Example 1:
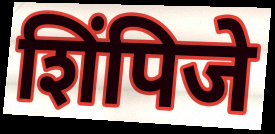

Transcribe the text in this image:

शिंपिजे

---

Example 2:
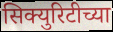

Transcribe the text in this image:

सिक्युरिटीच्या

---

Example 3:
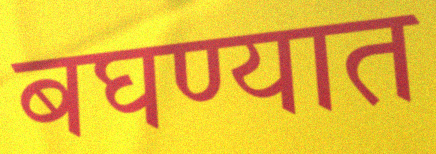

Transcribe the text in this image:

बघण्यात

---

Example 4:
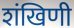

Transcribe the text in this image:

शंखिणी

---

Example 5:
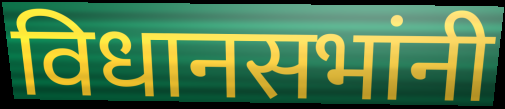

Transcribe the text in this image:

विधानसभांनी